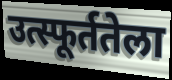
उत्स्फूर्ततेला